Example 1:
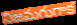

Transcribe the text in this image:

నిజమగుగాక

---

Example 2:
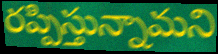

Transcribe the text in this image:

రప్పిస్తున్నామని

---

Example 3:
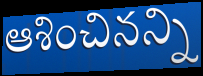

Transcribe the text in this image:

ఆశించినన్ని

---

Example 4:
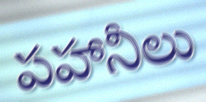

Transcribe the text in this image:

పహానీలు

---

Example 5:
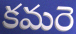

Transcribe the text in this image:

కమరె